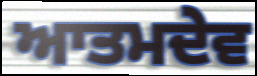
ਆਤਮਦੇਵ